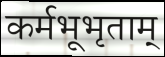
कर्मभूभृताम्